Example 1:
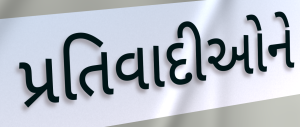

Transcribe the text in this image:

પ્રતિવાદીઓને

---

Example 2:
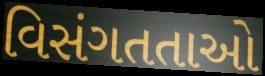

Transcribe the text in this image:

વિસંગતતાઓ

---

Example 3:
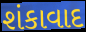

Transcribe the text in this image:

શંકાવાદ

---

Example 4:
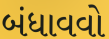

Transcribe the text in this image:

બંધાવવો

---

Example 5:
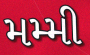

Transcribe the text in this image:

મમ્મી